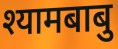
श्यामबाबु